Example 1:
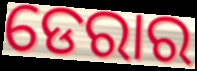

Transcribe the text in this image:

ଡେରାର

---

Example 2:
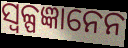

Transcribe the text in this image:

ସ୍ଵଳ୍ପଜ୍ଞାନେନ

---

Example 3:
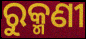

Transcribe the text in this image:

ରୁକ୍ମଣୀ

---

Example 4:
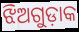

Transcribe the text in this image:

ଝିଅଗୁଡ଼ାକ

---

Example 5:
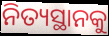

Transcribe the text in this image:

ନିତ୍ୟସ୍ଥାନକୁ